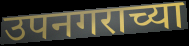
उपनगराच्या